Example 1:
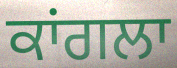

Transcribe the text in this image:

ਕਾਂਗਲਾ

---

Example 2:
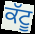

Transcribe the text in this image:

ਕੱਟੂ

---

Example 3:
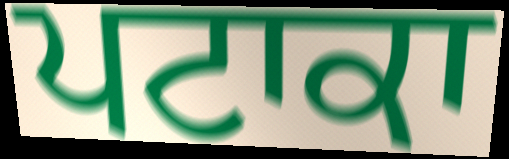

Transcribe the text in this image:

ਪਟਾਕਾ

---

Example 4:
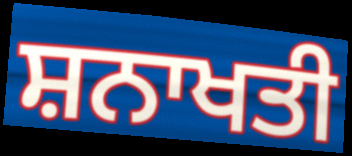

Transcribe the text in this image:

ਸ਼ਨਾਖਤੀ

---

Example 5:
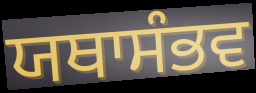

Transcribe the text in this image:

ਯਥਾਸੰਭਵ